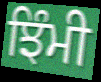
ਝਿੰਮੀ